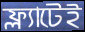
ফ্ল্যাটেই